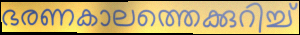
ഭരണകാലത്തെക്കുറിച്ച്